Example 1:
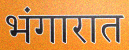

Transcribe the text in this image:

भंगारात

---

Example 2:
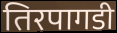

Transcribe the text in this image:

तिरपागडी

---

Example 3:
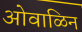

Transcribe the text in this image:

ओवाळिन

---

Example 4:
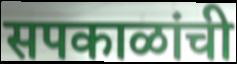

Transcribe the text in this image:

सपकाळांची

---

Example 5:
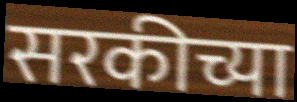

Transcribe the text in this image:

सरकीच्या